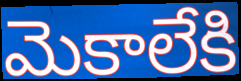
మెకాలేకి